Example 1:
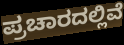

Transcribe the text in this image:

ಪ್ರಚಾರದಲ್ಲಿವೆ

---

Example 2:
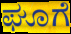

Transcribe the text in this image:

ಘೂಗೆ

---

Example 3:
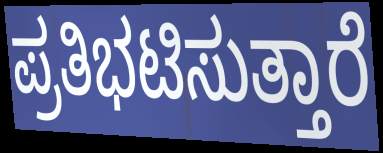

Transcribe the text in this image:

ಪ್ರತಿಭಟಿಸುತ್ತಾರೆ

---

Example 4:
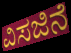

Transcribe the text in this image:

ವಿಸಜಿನೆ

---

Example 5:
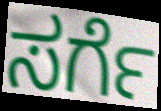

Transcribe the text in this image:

ಸರ್ಗೆ